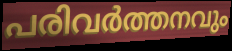
പരിവർത്തനവും